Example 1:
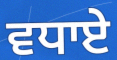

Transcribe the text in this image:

ਵਧਾਏ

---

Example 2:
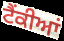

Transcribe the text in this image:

ਟੈਂਕੀਆਂ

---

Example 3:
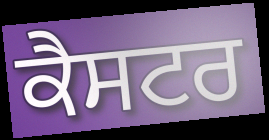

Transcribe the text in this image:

ਕੈਸਟਰ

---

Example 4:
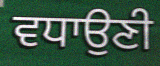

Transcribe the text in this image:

ਵਧਾਉਣੀ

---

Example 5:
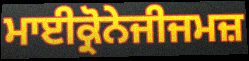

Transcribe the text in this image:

ਮਾਈਕ੍ਰੋਨੇਜੀਜਮਜ਼